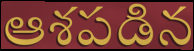
ఆశపడిన